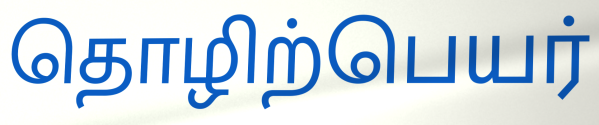
தொழிற்பெயர்